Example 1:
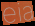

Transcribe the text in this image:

eia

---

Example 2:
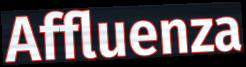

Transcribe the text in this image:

Affluenza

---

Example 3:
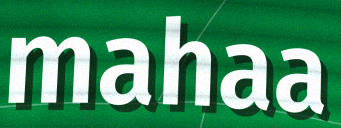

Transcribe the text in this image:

mahaa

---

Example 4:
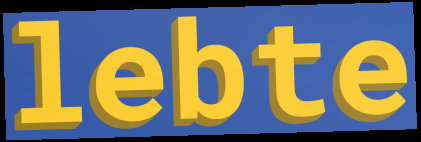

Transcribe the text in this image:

lebte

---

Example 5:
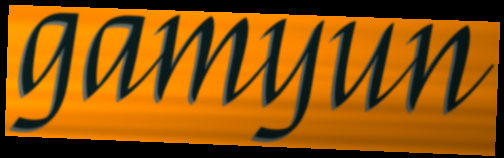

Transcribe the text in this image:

gamyun